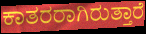
ಕಾತರರಾಗಿರುತ್ತಾರೆ